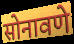
सोनावणे